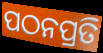
ପଠନପ୍ରତି